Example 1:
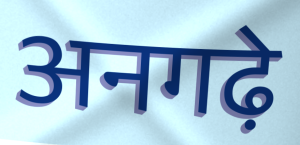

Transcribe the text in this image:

अनगढ़े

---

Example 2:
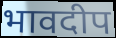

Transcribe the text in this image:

भावदीप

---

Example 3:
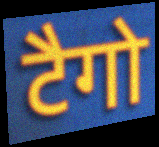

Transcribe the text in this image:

टैगो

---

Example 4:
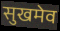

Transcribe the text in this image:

सुखमेव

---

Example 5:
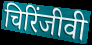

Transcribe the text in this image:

चिरिंजीवी